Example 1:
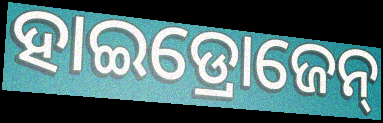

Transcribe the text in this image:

ହାଇଡ୍ରୋଜେନ୍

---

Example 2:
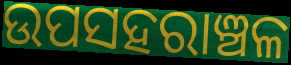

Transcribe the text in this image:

ଉପସହରାଞ୍ଚଳ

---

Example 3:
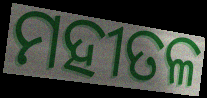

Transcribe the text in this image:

ମହୀତଳ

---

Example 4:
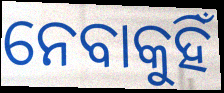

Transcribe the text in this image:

ନେବାକୁହିଁ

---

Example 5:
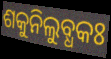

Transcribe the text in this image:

ଶକୁନିଲୁବ୍ଧକଃ